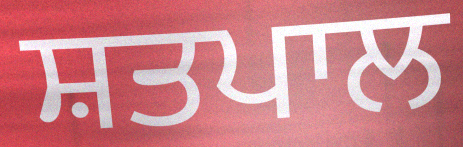
ਸ਼ਤਪਾਲ